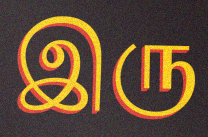
இரு